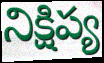
నిక్షిప్య